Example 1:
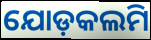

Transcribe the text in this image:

ଯୋଡ଼କଲମି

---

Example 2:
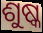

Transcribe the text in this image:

ଶୁଷ୍କ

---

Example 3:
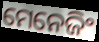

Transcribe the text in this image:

ମେନେଜିଂ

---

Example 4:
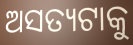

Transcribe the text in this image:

ଅସତ୍ୟଟାକୁ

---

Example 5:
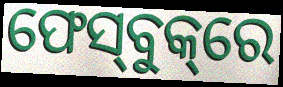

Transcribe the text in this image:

ଫେସ୍‌ବୁକ୍‌ରେ